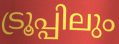
ട്രൂപ്പിലും